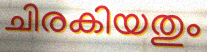
ചിരകിയതും